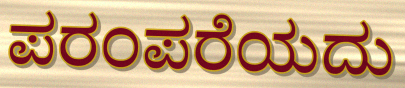
ಪರಂಪರೆಯದು